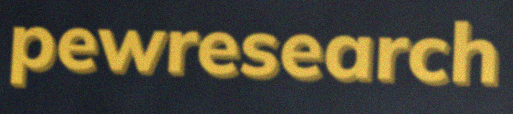
pewresearch